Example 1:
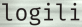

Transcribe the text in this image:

logili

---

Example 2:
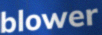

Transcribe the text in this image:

blower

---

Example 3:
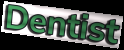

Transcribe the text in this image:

Dentist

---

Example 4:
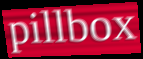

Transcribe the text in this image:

pillbox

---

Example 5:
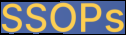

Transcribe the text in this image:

SSOPs